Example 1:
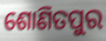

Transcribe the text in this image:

ଶୋଣିତପୁର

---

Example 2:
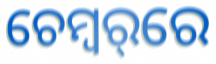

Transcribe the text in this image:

ଚେମ୍ବର୍‌ରେ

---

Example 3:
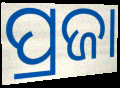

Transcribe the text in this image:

ପ୍ରଜା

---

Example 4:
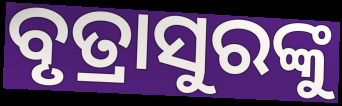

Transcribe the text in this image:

ବୃତ୍ରାସୁରଙ୍କୁ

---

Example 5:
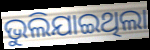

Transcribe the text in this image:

ଭୁଲିଯାଇଥିଲା